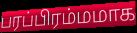
பரப்பிரம்மமாக